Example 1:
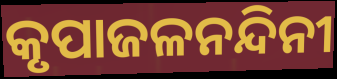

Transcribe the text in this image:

କୃପାଜଳନନ୍ଦିନୀ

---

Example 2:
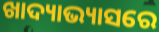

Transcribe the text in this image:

ଖାଦ୍ୟାଭ୍ୟାସରେ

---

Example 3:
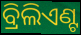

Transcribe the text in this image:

ବ୍ରିଲିଏଣ୍ଟ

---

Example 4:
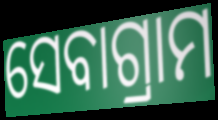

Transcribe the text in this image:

ସେବାଗ୍ରାମ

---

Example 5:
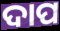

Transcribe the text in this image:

ଦାପ